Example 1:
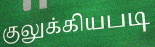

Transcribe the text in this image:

குலுக்கியபடி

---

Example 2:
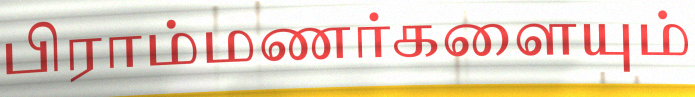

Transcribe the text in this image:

பிராம்மணர்களையும்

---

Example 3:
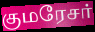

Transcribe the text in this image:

குமரேசர்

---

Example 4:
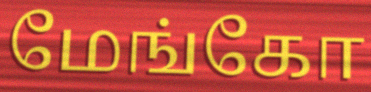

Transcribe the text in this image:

மேங்கோ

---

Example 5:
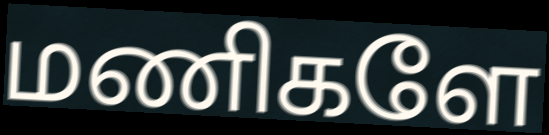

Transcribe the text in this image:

மணிகளே